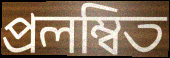
প্রলম্বিত